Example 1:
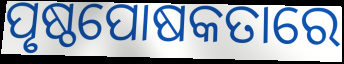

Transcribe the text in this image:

ପୃଷ୍ଠପୋଷକତାରେ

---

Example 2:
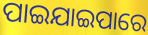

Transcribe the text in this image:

ପାଇଯାଇପାରେ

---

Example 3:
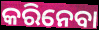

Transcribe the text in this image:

କରିନେବା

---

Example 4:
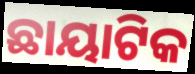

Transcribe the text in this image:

ଛାୟାଟିକ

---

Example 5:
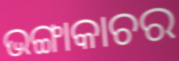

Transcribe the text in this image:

ଭଙ୍ଗାକାଚର